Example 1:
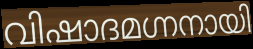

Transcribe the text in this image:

വിഷാദമഗ്നനായി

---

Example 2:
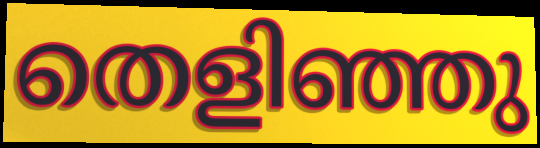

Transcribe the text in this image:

തെളിഞ്ഞു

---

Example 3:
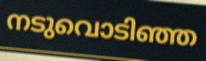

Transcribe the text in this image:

നടുവൊടിഞ്ഞ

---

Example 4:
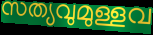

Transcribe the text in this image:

സത്യവുമുള്ളവ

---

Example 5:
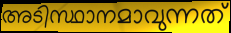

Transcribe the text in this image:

അടിസ്ഥാനമാവുന്നത്